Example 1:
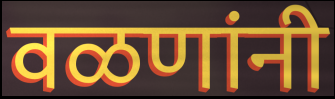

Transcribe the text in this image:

वळणांनी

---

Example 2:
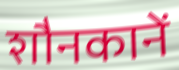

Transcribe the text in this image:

शौनकानें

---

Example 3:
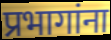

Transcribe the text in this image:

प्रभागांना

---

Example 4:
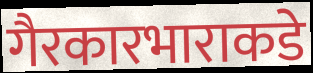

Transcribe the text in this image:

गैरकारभाराकडे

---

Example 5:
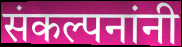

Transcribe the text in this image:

संकल्पनांनी